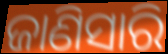
ଜାଣିସାରି